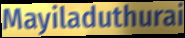
Mayiladuthurai